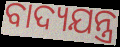
ବାଦ୍ୟଯନ୍ତ୍ର